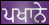
ਪਖਾਨੇ